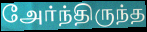
அேர்ந்திருந்த